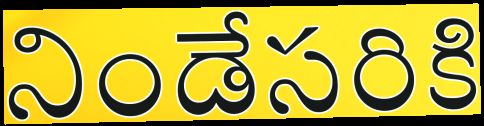
నిండేసరికి